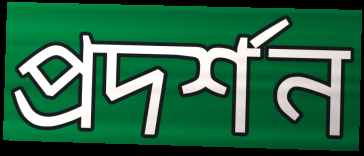
প্রদর্শন